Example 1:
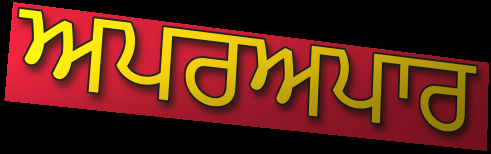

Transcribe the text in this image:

ਅਪਰਅਪਾਰ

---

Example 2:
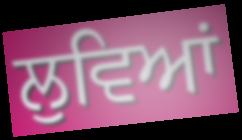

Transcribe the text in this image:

ਲੁਵਿਆਂ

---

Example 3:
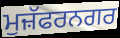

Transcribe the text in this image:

ਮੁਜ਼ੱਫਰਨਗਰ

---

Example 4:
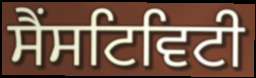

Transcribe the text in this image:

ਸੈਂਸਟਿਵਿਟੀ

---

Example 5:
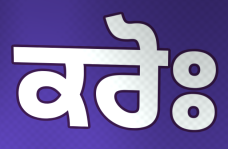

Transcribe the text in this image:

ਕਰੋਃ